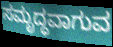
ಸಮೃದ್ಧವಾಗುವ